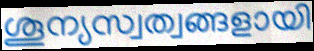
ശൂന്യസ്വത്വങ്ങളായി